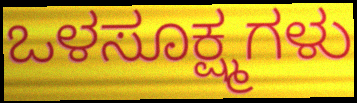
ಒಳಸೂಕ್ಷ್ಮಗಳು